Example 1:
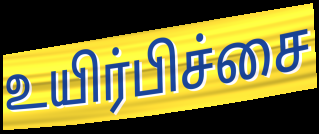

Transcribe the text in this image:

உயிர்பிச்சை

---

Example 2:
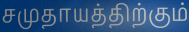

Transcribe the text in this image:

சமுதாயத்திற்கும்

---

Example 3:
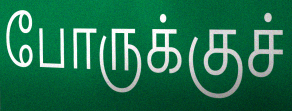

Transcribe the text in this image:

போருக்குச்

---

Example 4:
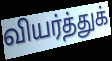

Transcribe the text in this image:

வியர்த்துக்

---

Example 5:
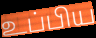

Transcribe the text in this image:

உப்பிய